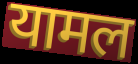
यामल